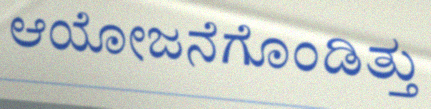
ಆಯೋಜನೆಗೊಂಡಿತ್ತು